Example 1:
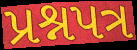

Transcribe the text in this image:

પ્રશ્નપત્ર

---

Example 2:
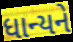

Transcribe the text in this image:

ધાન્યને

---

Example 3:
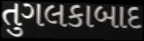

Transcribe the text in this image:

તુગલકાબાદ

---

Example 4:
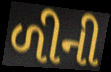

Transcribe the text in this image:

ળીની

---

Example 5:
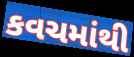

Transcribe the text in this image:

કવચમાંથી